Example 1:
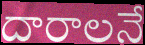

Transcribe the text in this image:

దారాలనే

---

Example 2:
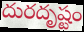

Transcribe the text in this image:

దురదృష్టం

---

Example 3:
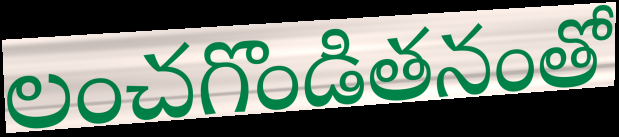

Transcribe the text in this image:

లంచగొండితనంతో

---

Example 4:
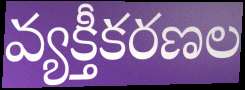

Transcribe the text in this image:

వ్యక్తీకరణల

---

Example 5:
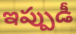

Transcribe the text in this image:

ఇప్పుడీ